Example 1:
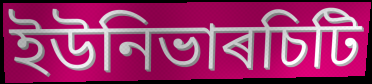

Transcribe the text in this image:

ইউনিভাৰচিটি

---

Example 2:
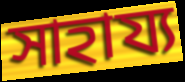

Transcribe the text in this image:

সাহায্য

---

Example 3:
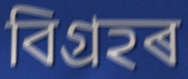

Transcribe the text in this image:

বিগ্ৰহৰ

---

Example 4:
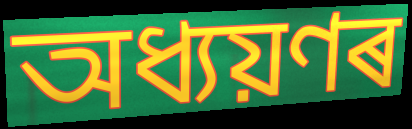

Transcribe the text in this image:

অধ্যয়ণৰ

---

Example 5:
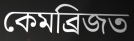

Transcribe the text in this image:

কেমব্ৰিজত